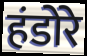
हंडोरे